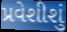
પ્રવેશીશું